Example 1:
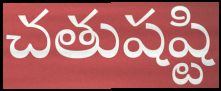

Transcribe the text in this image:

చతుషష్టి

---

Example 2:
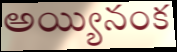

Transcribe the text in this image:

అయ్యినంక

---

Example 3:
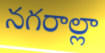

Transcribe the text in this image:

నగరాల్లా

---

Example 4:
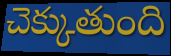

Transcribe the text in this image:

చెక్కుతుంది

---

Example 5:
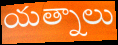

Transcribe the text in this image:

యత్నాలు